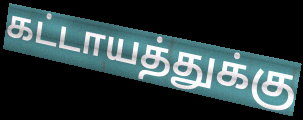
கட்டாயத்துக்கு